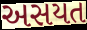
અસયત